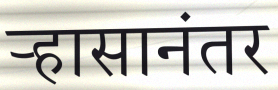
ऱ्हासानंतर